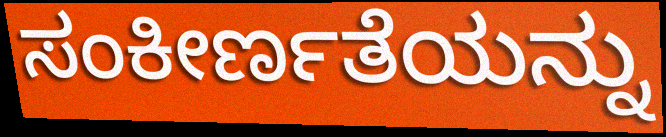
ಸಂಕೀರ್ಣತೆಯನ್ನು